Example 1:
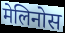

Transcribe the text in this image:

मेलिनोस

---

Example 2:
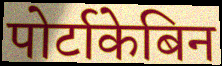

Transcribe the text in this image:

पोर्टाकेबिन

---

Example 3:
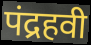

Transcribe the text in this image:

पंद्रहवी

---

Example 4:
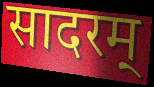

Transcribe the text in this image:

सादरम्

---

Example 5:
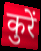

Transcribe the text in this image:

कुरें